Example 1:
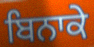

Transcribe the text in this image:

ਬਿਨਾਕੇ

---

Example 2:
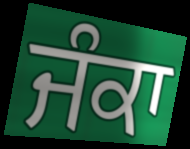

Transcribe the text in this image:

ਜੰਕਾ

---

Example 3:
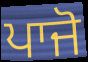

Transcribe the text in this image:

ਪਾਜੋ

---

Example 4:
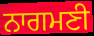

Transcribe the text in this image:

ਨਾਗਮਣੀ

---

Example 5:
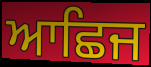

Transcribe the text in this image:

ਆਛਿਜ